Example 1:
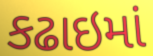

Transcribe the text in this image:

કઢાઇમાં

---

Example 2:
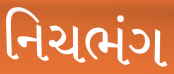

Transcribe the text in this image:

નિચભંગ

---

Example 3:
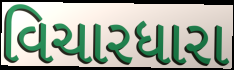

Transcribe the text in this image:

વિચારધારા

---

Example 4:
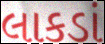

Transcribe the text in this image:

લાકડાં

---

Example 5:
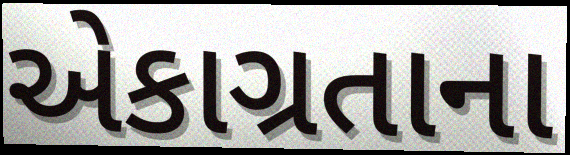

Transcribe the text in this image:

એકાગ્રતાના